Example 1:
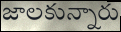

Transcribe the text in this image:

జాలకున్నారు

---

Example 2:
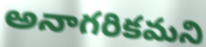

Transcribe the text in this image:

అనాగరికమని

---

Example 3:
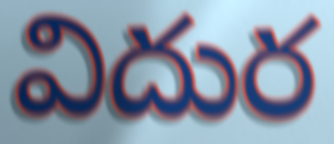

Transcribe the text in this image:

విదుర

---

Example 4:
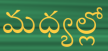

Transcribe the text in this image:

మధ్యల్లో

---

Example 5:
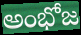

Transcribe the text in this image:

అంభోజ